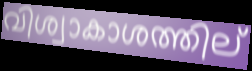
വിശ്വാകാശത്തില്